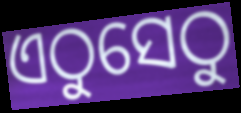
ଏଠୁସେଠୁ